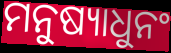
ମନୁଷ୍ୟାଧୁନଂ